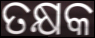
ତକ୍ଷକ